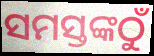
ସମସ୍ତଙ୍କଠୁଁ